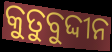
କୁତୁବୁଦ୍ଦୀନ